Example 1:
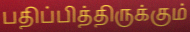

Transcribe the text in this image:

பதிப்பித்திருக்கும்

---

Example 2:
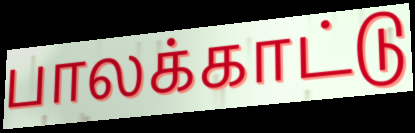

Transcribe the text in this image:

பாலக்காட்டு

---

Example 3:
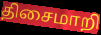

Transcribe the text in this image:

திசைமாறி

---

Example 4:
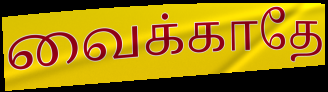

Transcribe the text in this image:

வைக்காதே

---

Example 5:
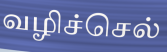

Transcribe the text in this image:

வழிச்செல்